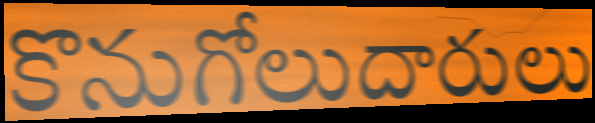
కొనుగోలుదారులు